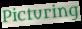
Picturing